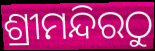
ଶ୍ରୀମନ୍ଦିରଠୁ